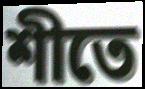
শীতে